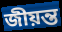
জীয়ন্ত